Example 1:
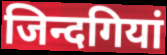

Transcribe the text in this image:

जिन्दगियां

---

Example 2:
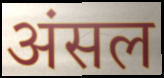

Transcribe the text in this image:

अंसल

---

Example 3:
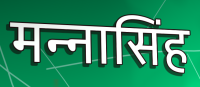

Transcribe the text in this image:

मन्नासिंह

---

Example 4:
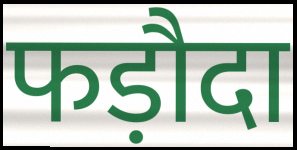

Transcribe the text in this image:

फड़ौदा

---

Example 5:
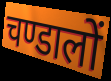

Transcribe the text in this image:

चण्डालों